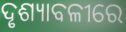
ଦୃଶ୍ୟାବଳୀରେ